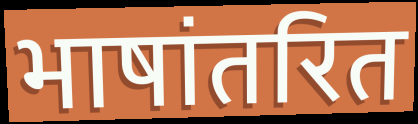
भाषांतरित